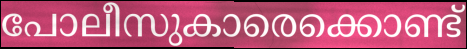
പോലീസുകാരെക്കൊണ്ട്